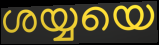
ശയ്യയെ